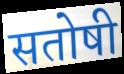
सतोषी